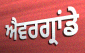
ਐਵਰਗ੍ਰਾਂਡੇ